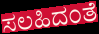
ಸಲಹಿದಂತೆ